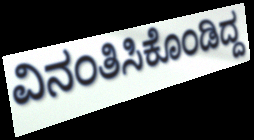
ವಿನಂತಿಸಿಕೊಂಡಿದ್ದ